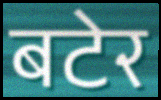
बटेर